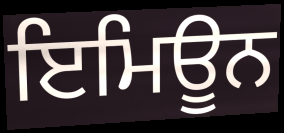
ਇਮਿਊਨ